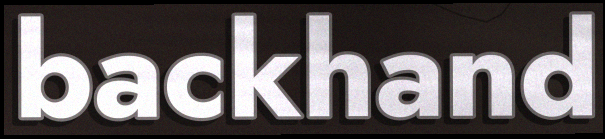
backhand